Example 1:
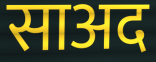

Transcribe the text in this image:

साअद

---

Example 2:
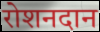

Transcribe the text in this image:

रोशनदान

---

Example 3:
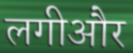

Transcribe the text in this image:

लगीऔर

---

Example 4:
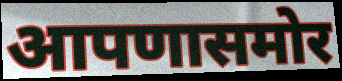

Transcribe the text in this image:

आपणासमोर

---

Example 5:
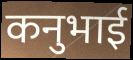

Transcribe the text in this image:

कनुभाई